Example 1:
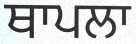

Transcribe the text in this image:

ਥਾਪਲਾ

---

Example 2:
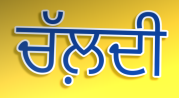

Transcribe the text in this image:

ਚੱਲ਼ਦੀ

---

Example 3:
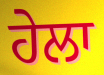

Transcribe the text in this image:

ਹੇਲਾ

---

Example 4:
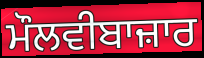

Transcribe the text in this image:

ਮੌਲਵੀਬਾਜ਼ਾਰ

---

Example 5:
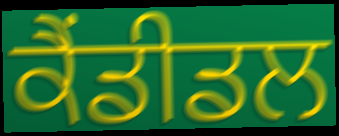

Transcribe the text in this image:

ਕੈਂਡੀਡਲ